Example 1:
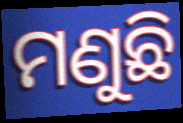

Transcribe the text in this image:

ମଣୁଛି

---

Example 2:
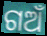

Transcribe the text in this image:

ଗଅଁ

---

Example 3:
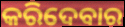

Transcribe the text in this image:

କରିଦେବାର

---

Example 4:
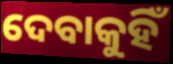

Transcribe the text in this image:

ଦେବାକୁହିଁ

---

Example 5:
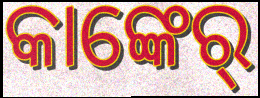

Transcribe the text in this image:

କାଙ୍କେର୍